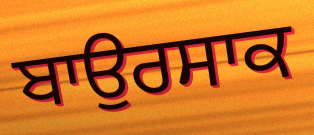
ਬਾਉਰਸਾਕ